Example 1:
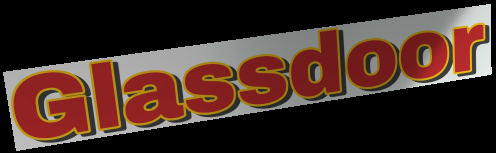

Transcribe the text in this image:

Glassdoor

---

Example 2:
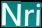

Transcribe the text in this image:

Nri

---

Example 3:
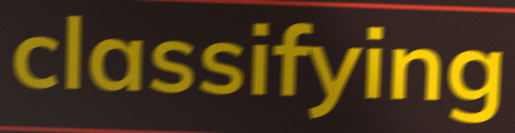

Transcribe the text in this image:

classifying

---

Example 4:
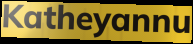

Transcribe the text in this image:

Katheyannu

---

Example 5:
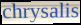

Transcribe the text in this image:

chrysalis